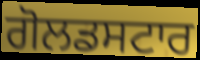
ਗੋਲਡਸਟਾਰ